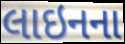
લાઇનના